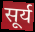
सूर्य